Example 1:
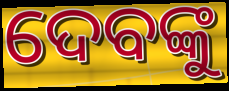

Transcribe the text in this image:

ଦେବଙ୍କୁ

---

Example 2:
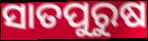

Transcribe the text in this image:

ସାତପୁରୁଷ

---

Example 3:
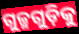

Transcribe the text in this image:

ଗୁଳ୍ମଗୁଡ଼ିକୁ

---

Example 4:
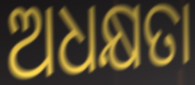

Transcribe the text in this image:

ଅଧକ୍ଷତା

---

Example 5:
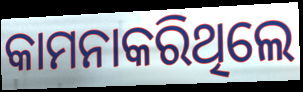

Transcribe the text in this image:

କାମନାକରିଥିଲେ